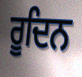
ਰੂਦਿਨ